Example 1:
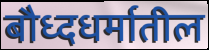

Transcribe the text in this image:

बौध्दधर्मातील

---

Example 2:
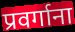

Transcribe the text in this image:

प्रवर्गाना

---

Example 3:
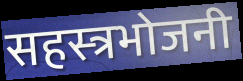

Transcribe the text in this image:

सहस्त्रभोजनी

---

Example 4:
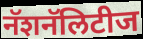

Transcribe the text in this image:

नॅशनॅलिटीज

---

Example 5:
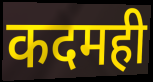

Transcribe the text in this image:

कदमही